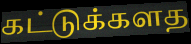
கட்டுக்களத